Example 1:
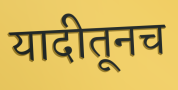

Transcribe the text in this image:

यादीतूनच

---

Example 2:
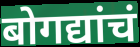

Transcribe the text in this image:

बोगद्यांचं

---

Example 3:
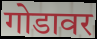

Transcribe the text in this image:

गोडावर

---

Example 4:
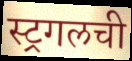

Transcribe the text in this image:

स्ट्रगलची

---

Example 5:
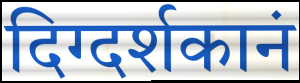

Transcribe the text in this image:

दिग्दर्शकानं